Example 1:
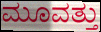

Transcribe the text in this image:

ಮೂವತ್ತು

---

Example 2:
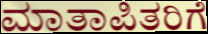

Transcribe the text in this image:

ಮಾತಾಪಿತರಿಗೆ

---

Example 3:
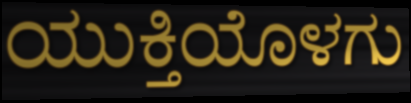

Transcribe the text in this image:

ಯುಕ್ತಿಯೊಳಗು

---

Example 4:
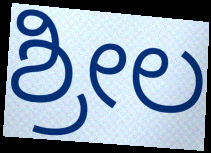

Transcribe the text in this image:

ಶ್ರೀಲ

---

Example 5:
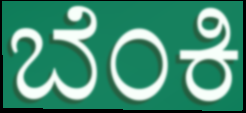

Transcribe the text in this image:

ಬೆಂಕಿ